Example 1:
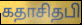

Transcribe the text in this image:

கதாசிதபி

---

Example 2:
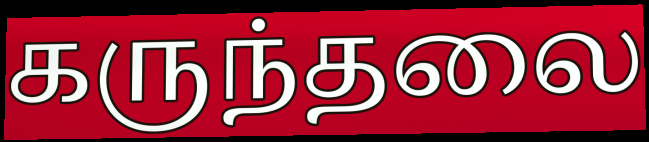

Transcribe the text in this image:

கருந்தலை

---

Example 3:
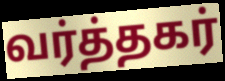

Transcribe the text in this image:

வர்த்தகர்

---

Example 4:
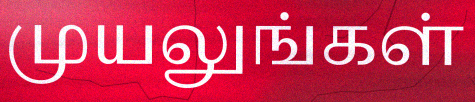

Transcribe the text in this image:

முயலுங்கள்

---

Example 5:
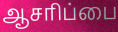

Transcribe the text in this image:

ஆசரிப்பை